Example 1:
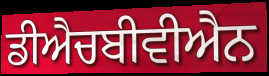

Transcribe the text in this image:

ਡੀਐਚਬੀਵੀਐਨ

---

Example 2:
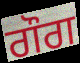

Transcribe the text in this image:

ਗੌਗ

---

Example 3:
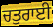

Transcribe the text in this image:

ਚਤੁਰਾਈ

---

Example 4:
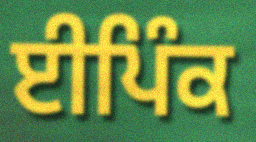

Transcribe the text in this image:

ਈਪਿੰਕ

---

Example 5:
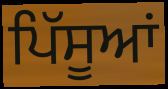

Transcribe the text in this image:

ਪਿੱਸੂਆਂ